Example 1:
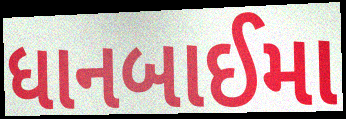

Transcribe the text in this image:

ધાનબાઈમા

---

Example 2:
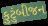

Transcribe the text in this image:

કુટુંબીજન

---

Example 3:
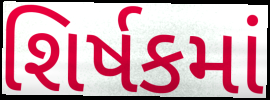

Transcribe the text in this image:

શિર્ષકમાં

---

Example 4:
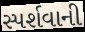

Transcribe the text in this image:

સ્પર્શવાની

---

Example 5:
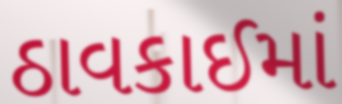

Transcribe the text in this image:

ઠાવકાઈમાં